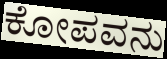
ಕೋಪವನು